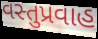
વસ્તુપ્રવાહ